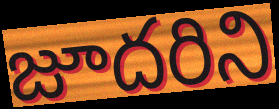
జూదరిని